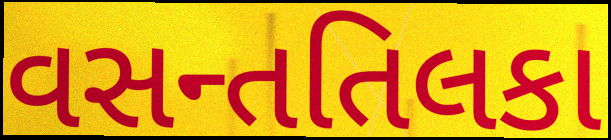
વસન્તતિલકા